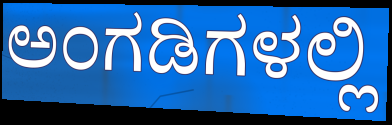
ಅಂಗಡಿಗಳಲ್ಲಿ